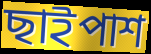
ছাইপাশ